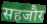
सहजौर